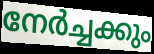
നേർച്ചക്കും